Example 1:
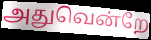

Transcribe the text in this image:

அதுவென்றே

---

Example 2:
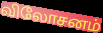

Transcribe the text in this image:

விலோசனம்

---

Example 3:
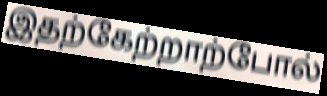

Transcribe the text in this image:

இதற்கேற்றாற்போல்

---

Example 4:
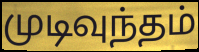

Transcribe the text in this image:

முடிவுந்தம்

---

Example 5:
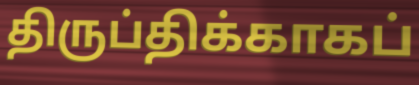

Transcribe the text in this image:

திருப்திக்காகப்